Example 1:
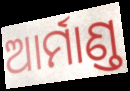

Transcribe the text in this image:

ଆର୍ମାଣ୍ଡ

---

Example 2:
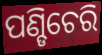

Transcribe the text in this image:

ପଣ୍ଡିଚେରି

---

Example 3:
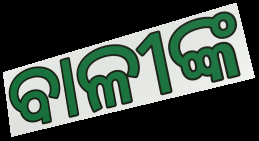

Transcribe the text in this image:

ବାଳୀଙ୍କ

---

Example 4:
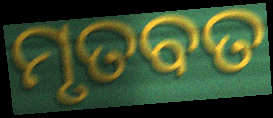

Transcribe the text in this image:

ମୃତବତ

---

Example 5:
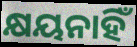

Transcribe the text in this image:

କ୍ଷୟନାହିଁ